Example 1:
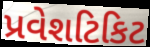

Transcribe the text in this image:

પ્રવેશટિકિટ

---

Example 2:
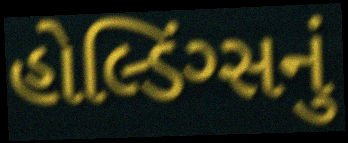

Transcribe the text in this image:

હોલ્ડિંગ્સનું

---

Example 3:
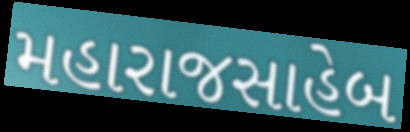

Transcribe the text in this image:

મહારાજસાહેબ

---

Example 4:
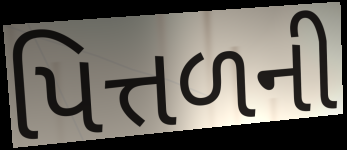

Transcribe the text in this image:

પિત્તળની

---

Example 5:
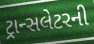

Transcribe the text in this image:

ટ્રાન્સલેટરની